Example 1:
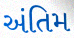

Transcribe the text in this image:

અંતિમ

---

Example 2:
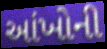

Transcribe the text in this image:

આંખોની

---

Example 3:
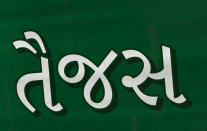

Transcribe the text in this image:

તૈજસ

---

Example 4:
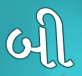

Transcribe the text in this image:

બી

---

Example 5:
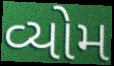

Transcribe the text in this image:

વ્યોમ